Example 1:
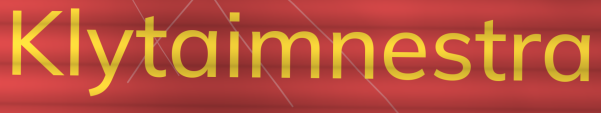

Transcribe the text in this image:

Klytaimnestra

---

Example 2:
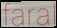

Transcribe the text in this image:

faral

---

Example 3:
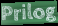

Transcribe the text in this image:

Prilog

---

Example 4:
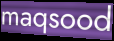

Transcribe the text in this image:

maqsood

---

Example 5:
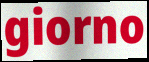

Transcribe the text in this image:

giorno